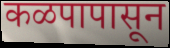
कळपापासून